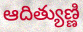
ఆదిత్యుణ్ణి